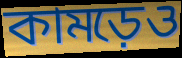
কামড়েও